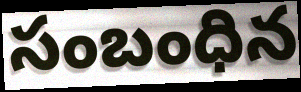
సంబంధిన